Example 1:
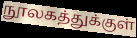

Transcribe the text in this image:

நூலகத்துக்குள்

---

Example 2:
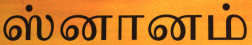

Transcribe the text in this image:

ஸ்னானம்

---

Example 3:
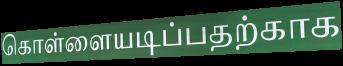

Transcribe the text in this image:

கொள்ளையடிப்பதற்காக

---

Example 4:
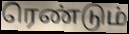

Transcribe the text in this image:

ரெண்டும்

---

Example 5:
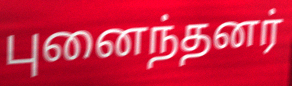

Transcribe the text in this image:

புனைந்தனர்